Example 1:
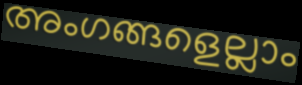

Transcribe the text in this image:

അംഗങ്ങളെല്ലാം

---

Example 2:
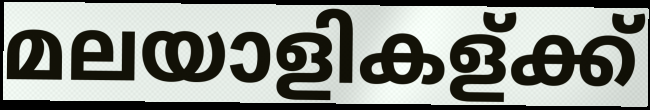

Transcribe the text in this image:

മലയാളികള്ക്ക്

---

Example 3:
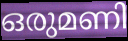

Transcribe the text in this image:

ഒരുമണി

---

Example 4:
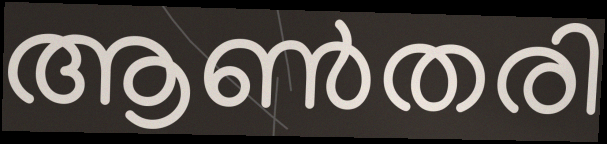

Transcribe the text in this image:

ആൺതരി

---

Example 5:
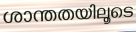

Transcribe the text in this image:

ശാന്തതയിലൂടെ